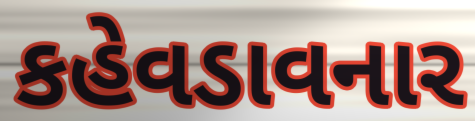
કહેવડાવનાર